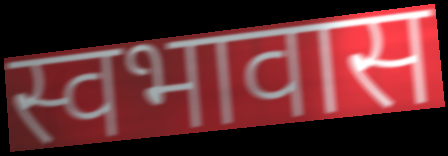
स्वभावास